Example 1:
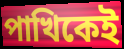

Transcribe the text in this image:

পাখিকেই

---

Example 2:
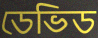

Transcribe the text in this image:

ডেভিড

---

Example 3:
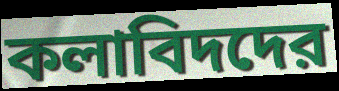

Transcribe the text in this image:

কলাবিদদের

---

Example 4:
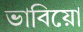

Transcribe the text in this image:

ভাবিয়ো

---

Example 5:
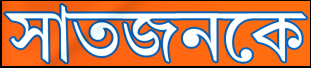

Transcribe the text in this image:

সাতজনকে